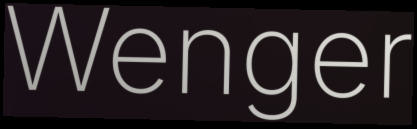
Wenger